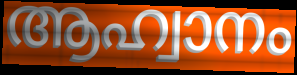
ആഹ്വാനം